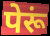
पेरूं